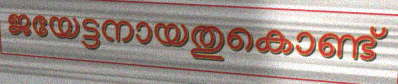
ജയേട്ടനായതുകൊണ്ട്